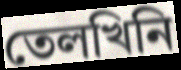
তেলখিনি